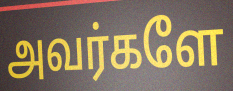
அவர்களே